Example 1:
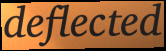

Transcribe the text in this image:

deflected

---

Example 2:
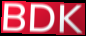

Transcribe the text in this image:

BDK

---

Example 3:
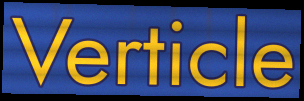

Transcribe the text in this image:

Verticle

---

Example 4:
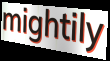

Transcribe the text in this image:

mightily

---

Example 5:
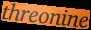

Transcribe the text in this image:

threonine